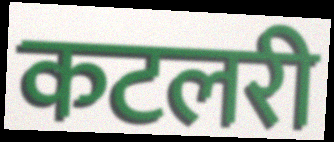
कटलरी